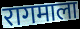
रागमाला